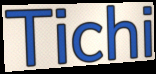
Tichi